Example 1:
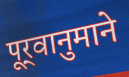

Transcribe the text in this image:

पूर्वानुमाने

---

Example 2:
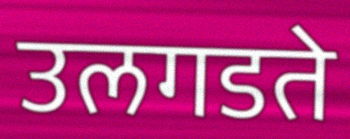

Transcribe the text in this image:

उलगडते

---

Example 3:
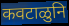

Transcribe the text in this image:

कवटाळुनि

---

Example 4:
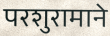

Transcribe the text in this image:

परशुरामाने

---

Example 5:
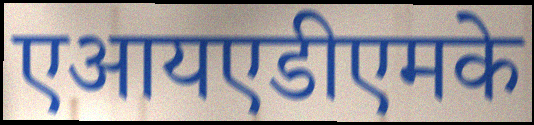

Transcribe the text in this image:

एआयएडीएमके